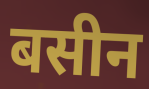
बसीन